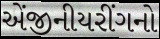
એંજીનીયરીંગનો